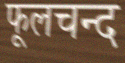
फूलचन्द